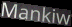
Mankiw